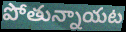
పోతున్నాయట